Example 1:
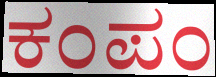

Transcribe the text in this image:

ಕಂಪಂ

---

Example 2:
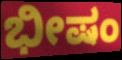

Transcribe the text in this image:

ಭೀಷಂ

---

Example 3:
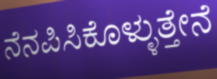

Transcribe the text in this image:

ನೆನಪಿಸಿಕೊಳ್ಳುತ್ತೇನೆ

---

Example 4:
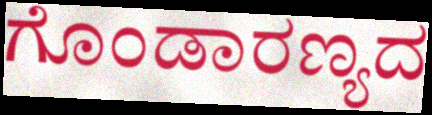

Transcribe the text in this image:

ಗೊಂಡಾರಣ್ಯದ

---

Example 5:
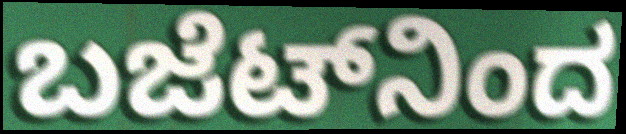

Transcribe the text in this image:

ಬಜೆಟ್‌ನಿಂದ